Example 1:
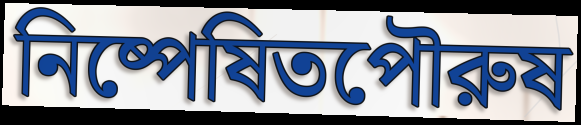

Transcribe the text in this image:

নিষ্পেষিতপৌরুষ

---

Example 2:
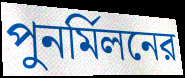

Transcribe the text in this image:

পুনর্মিলনের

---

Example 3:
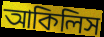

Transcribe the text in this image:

আকিলিস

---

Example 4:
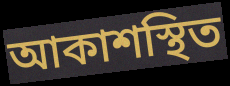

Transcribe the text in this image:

আকাশস্থিত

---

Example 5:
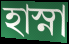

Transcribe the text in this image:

হাস্না